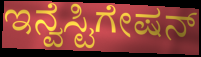
ಇನ್ವೆಸ್ಟಿಗೇಷನ್